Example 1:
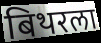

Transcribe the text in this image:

बिथरला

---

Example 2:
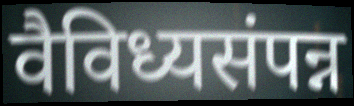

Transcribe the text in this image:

वैविध्यसंपन्न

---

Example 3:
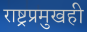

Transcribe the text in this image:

राष्ट्रप्रमुखही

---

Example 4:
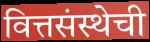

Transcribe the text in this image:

वित्तसंस्थेची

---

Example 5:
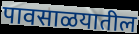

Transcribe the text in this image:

पावसाळयातील